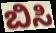
ಬಿಸಿ